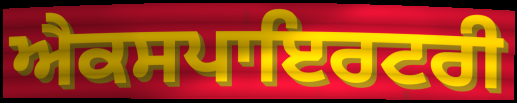
ਐਕਸਪਾਇਰਟਰੀ